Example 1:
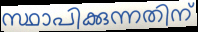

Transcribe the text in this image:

സ്ഥാപിക്കുന്നതിന്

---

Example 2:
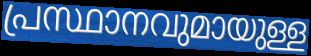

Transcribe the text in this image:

പ്രസ്ഥാനവുമായുള്ള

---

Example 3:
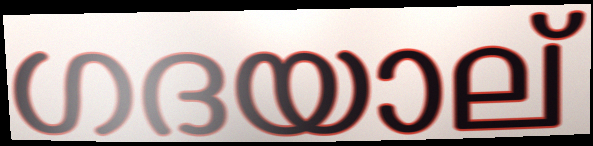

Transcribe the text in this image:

ഗദയാല്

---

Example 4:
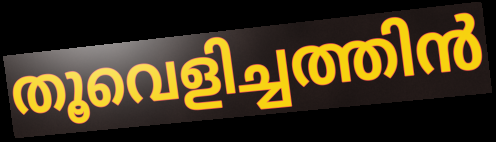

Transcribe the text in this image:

തൂവെളിച്ചത്തിൻ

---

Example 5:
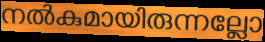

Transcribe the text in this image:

നൽകുമായിരുന്നല്ലോ